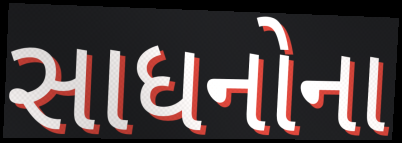
સાધનોના